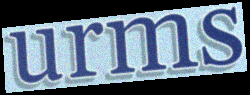
urms